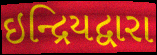
ઇન્દ્રિયદ્વારા